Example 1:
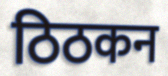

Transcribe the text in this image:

ठिठकन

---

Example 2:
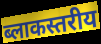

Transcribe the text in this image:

ब्लाकस्तरीय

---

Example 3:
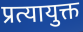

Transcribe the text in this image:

प्रत्यायुक्त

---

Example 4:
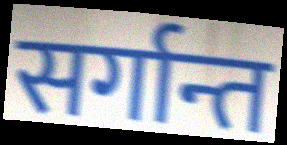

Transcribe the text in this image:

सर्गान्त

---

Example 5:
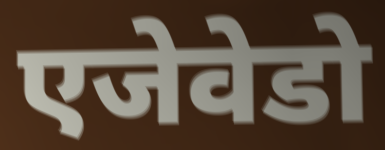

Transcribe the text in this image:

एजेवेडो